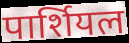
पार्शियल